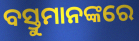
ବସ୍ତୁମାନଙ୍କରେ